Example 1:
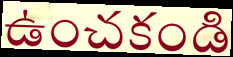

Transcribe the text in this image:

ఉంచకండి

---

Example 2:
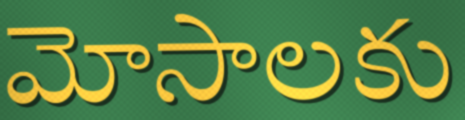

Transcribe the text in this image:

మోసాలకు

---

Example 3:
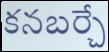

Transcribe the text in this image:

కనబర్చే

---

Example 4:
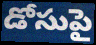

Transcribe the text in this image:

డోసుపై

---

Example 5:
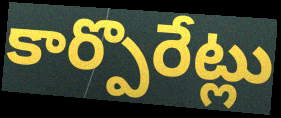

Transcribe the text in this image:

కార్పొరేట్లు